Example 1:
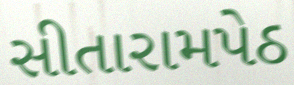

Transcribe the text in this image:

સીતારામપેઠ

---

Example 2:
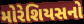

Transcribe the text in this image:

મોરેશિયસનો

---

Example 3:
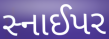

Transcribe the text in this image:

સ્નાઈપર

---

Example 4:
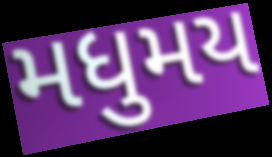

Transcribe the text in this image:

મધુમય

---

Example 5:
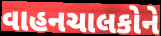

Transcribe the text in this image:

વાહનચાલકોને